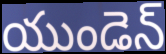
యుండెన్